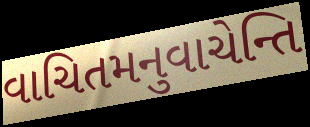
વાચિતમનુવાચેન્તિ